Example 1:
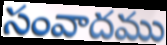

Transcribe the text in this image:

సంవాదము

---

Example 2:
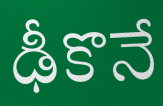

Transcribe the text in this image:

ఢీకొనే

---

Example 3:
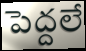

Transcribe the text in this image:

పెద్దలే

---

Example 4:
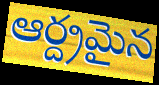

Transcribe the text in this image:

ఆర్ద్రమైన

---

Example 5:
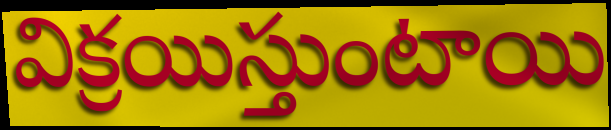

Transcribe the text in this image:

విక్రయిస్తుంటాయి